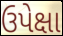
ઉપેક્ષા